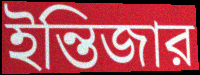
ইন্তিজার